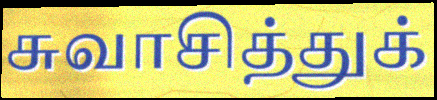
சுவாசித்துக்